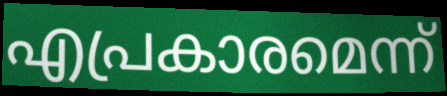
എപ്രകാരമെന്ന്